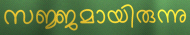
സജ്ജമായിരുന്നു